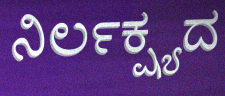
ನಿರ್ಲಕ್ಷ್ಯದ